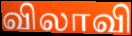
விலாவி